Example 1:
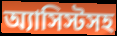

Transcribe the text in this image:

অ্যাসিস্টসহ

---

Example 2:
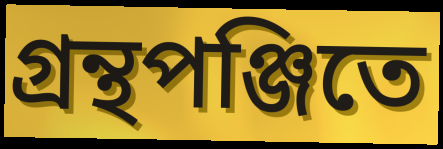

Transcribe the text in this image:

গ্রন্থপঞ্জিতে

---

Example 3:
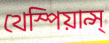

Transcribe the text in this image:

থেস্পিয়ান্স্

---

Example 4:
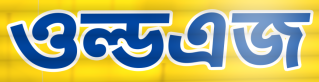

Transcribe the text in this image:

ওল্ডএজ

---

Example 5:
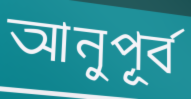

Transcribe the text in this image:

আনুপূর্ব